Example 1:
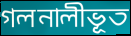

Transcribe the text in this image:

গলনালীভূত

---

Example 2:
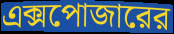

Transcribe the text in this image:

এক্সপোজারের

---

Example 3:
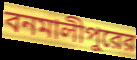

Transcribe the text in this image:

বনমালীপুরের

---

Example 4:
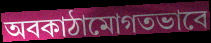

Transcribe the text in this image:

অবকাঠামোগতভাবে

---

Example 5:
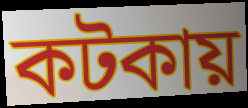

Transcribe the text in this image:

কটকায়